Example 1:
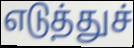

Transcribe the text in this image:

எடுத்துச்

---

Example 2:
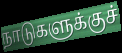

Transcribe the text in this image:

நாடுகளுக்குச்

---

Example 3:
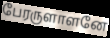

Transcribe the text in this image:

பேரருளாளனே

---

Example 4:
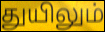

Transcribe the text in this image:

துயிலும்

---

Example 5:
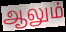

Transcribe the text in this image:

ஆலும்